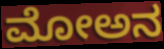
ಮೋಅನ